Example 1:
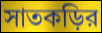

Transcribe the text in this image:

সাতকড়ির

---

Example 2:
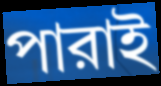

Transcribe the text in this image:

পারাই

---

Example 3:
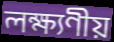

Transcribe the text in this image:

লক্ষ্যণীয়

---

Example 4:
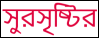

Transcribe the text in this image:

সুরসৃষ্টির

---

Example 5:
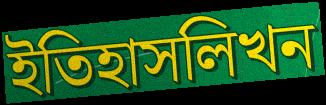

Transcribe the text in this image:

ইতিহাসলিখন